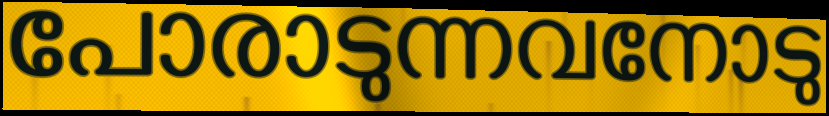
പോരാടുന്നവനോടു